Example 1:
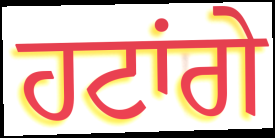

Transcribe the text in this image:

ਹਟਾਂਗੇ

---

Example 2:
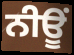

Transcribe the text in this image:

ਨੀਊਂ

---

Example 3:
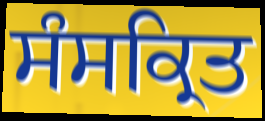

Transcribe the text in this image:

ਸੰਸਕ੍ਰਿਤ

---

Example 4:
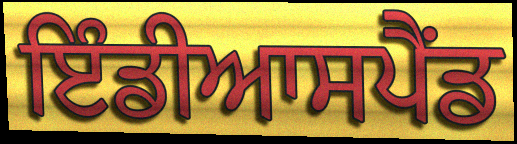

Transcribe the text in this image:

ਇੰਡੀਆਸਪੈਂਡ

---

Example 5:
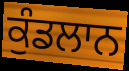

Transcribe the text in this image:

ਕੁੰਡਲਾਨ